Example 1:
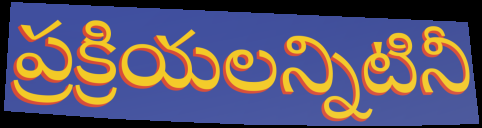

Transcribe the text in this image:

ప్రక్రియలన్నిటినీ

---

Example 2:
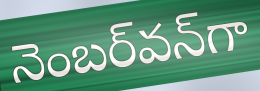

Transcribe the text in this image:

నెంబర్‌వన్‌గా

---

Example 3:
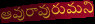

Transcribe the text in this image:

ఆవురావురుమని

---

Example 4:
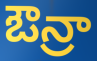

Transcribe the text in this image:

ఔన్రా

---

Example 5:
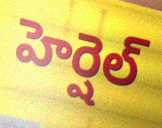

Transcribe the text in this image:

హెర్షెల్